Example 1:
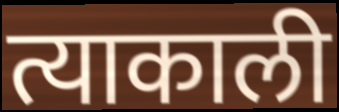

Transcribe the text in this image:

त्याकाली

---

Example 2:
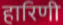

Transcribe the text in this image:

हारिणी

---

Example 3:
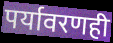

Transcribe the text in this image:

पर्यावरणही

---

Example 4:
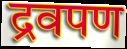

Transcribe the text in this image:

द्रवपण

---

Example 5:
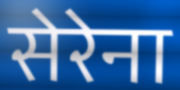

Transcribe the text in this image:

सेरेना